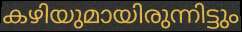
കഴിയുമായിരുന്നിട്ടും